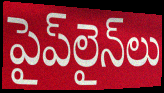
పైప్‌లైన్‌లు